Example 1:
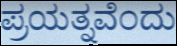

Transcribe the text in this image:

ಪ್ರಯತ್ನವೆಂದು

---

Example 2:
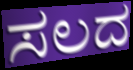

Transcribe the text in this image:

ಸಲದ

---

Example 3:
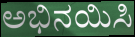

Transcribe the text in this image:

ಅಭಿನಯಿಸಿ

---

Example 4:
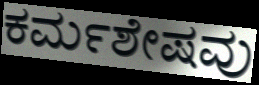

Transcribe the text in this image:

ಕರ್ಮಶೇಷವು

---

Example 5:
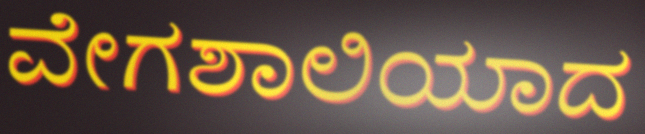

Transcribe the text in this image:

ವೇಗಶಾಲಿಯಾದ